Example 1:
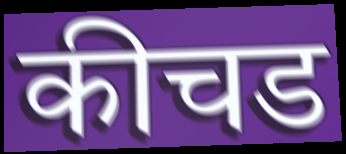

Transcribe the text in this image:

कीचड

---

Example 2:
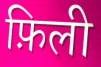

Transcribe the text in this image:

फ़िली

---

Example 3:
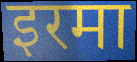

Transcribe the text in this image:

इरमा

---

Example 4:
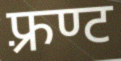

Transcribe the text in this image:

फ़्रण्ट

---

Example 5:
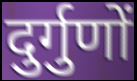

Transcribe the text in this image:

दुर्गुणों